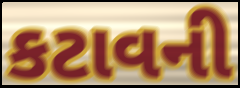
કટાવની